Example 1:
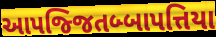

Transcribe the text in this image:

આપજ્જિતબ્બાપત્તિયા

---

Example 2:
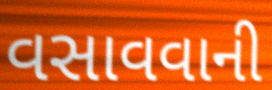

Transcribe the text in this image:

વસાવવાની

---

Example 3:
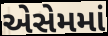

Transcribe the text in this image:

એસેમમાં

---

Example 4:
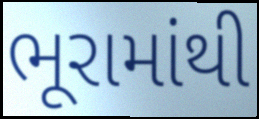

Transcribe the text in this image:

ભૂરામાંથી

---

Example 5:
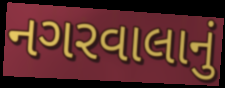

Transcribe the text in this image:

નગરવાલાનું